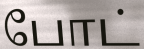
போட்